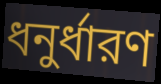
ধনুর্ধারণ